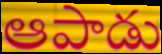
ఆపాడు